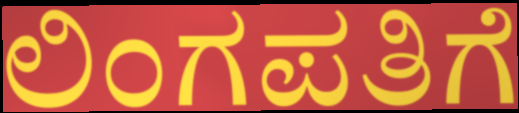
ಲಿಂಗಪತಿಗೆ